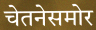
चेतनेसमोर